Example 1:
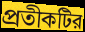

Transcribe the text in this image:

প্রতীকটির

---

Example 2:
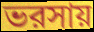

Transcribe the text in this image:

ভরসায়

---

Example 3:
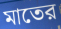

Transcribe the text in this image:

মাতের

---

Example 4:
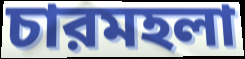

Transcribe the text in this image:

চারমহলা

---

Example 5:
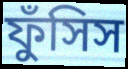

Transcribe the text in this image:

ফুঁসিস